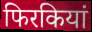
फिरकियां